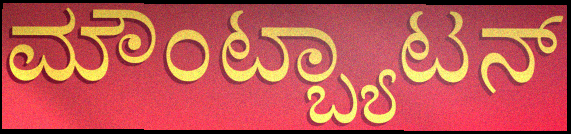
ಮೌಂಟ್ಬ್ಯಾಟನ್